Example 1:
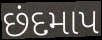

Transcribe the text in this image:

છંદમાપ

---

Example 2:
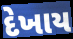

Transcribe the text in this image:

દેખાય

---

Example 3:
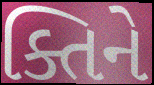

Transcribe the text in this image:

ક્તિને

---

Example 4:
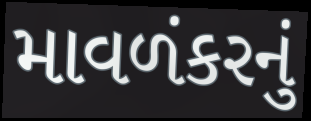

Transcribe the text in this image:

માવળંકરનું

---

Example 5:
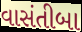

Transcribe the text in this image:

વાસંતીબા